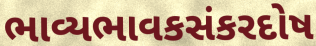
ભાવ્યભાવકસંકરદોષ